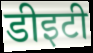
डीइटी